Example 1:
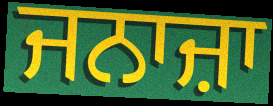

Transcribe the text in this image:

ਜਨਾਜ਼ਾ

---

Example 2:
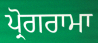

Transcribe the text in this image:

ਪ੍ਰੋਗਰਾਮਾ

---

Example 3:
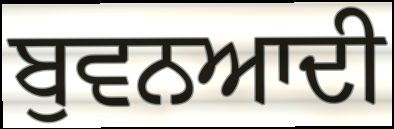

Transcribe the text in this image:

ਬੁਵਨਆਦੀ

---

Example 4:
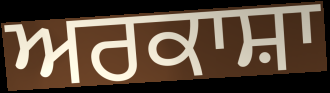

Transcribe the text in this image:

ਅਰਕਾਸ਼ਾ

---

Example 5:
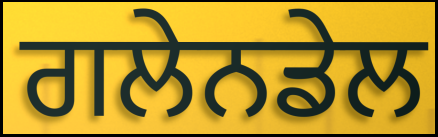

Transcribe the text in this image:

ਗਲੇਨਡੇਲ